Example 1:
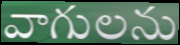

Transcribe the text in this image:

వాగులను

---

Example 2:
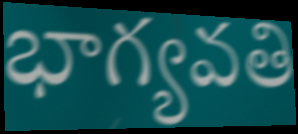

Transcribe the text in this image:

భాగ్యవతి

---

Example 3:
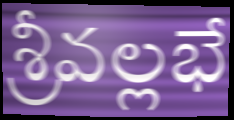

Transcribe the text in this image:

శ్రీవల్లభే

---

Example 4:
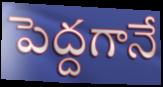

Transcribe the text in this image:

పెద్దగానే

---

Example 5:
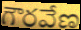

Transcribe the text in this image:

గౌరవేణ